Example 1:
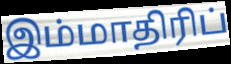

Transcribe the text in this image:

இம்மாதிரிப்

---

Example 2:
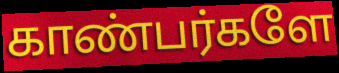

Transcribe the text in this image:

காண்பர்களே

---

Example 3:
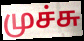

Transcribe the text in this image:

முச்சு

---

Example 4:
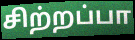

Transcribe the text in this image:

சிற்றப்பா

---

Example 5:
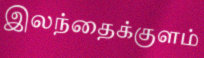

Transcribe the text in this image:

இலந்தைக்குளம்